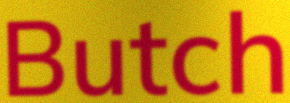
Butch